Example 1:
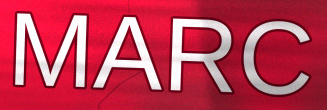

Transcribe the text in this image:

MARC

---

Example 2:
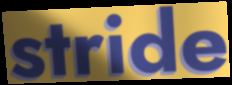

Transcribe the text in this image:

stride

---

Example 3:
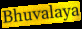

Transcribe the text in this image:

Bhuvalaya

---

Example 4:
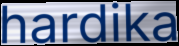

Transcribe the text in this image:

hardika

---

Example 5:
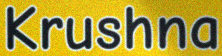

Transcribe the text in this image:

Krushna